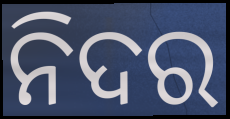
ନିଦର